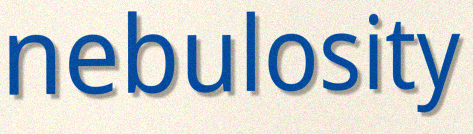
nebulosity